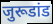
जुरूडांड